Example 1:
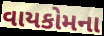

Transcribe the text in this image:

વાયકોમના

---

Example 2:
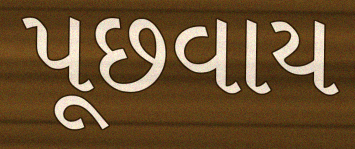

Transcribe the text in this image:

પૂછવાય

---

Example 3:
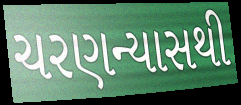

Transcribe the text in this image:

ચરણન્યાસથી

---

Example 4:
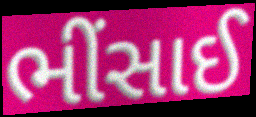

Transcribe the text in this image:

ભીંસાઈ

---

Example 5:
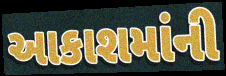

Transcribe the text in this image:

આકાશમાંની